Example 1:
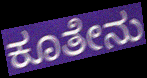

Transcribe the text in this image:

ಕೂತೇನು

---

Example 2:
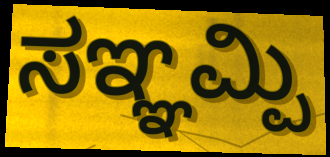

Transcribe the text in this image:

ಸಞ್ಞಮ್ಪಿ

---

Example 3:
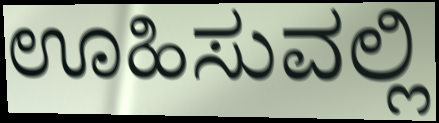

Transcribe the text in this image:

ಊಹಿಸುವಲ್ಲಿ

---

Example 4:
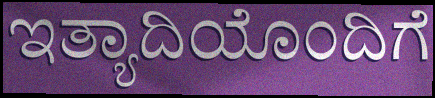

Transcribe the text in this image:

ಇತ್ಯಾದಿಯೊಂದಿಗೆ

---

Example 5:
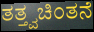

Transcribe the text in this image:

ತತ್ತ್ವಚಿಂತನೆ